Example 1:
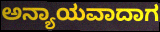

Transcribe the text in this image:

ಅನ್ಯಾಯವಾದಾಗ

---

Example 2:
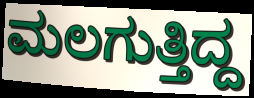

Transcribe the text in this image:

ಮಲಗುತ್ತಿದ್ದ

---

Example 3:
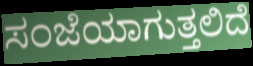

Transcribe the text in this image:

ಸಂಜೆಯಾಗುತ್ತಲಿದೆ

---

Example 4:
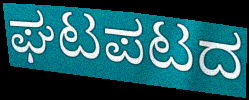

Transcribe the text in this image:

ಘಟಪಟದ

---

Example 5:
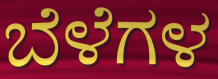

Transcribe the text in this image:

ಬೆಳೆಗಳ